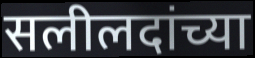
सलीलदांच्या